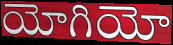
యోగియో